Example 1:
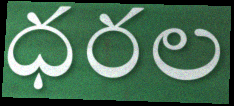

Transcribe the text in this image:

ధరల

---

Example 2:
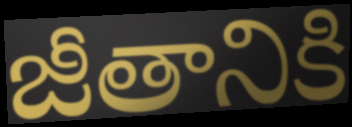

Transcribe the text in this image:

జీతానికి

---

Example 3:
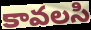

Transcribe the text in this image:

కావలసి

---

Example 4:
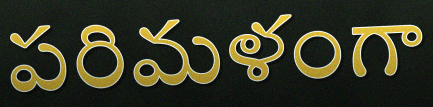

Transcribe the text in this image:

పరిమళంగా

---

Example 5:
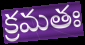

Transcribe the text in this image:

క్రమతః